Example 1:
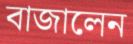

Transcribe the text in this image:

বাজালেন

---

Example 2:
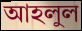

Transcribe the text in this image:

আহলুল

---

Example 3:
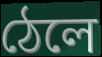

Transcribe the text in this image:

ঠেলে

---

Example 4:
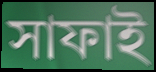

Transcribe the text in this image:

সাফাই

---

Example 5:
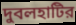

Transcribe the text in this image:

দুবলহাটির